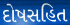
દોષસહિત